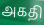
அகதி